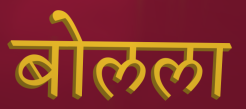
बोलला